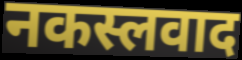
नकस्लवाद